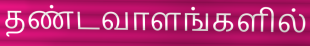
தண்டவாளங்களில்